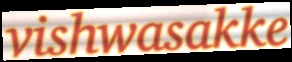
vishwasakke